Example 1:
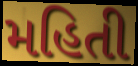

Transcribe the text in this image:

મહિતી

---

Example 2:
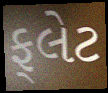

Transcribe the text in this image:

ફ્‌લેટ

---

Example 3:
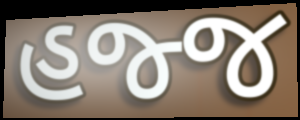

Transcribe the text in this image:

હજ્જ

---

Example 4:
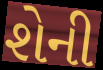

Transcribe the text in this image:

શેની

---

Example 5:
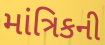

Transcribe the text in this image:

માંત્રિકની